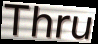
Thru